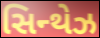
સિન્થેઝ